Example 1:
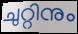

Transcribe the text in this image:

ചുറ്റിനും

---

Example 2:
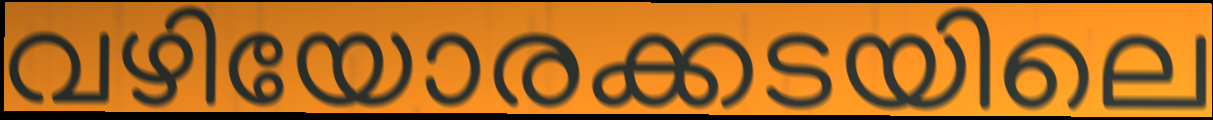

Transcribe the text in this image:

വഴിയോരക്കടയിലെ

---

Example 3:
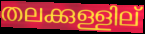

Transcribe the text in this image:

തലക്കുള്ളില്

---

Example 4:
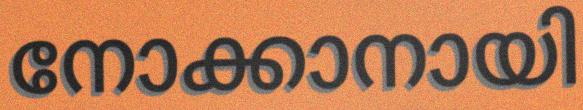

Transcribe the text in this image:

നോക്കാനായി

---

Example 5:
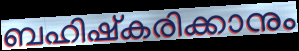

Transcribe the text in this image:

ബഹിഷ്കരിക്കാനും